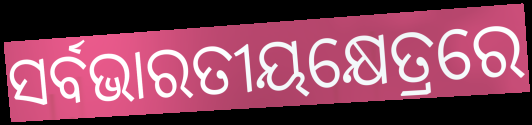
ସର୍ବଭାରତୀୟକ୍ଷେତ୍ରରେ